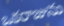
ఒకరాజును